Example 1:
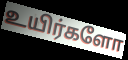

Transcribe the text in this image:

உயிர்களோ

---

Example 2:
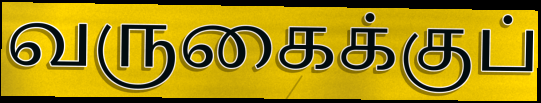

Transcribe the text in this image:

வருகைக்குப்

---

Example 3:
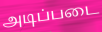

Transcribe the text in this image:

அடிப்படை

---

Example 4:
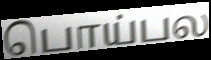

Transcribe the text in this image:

பொய்பல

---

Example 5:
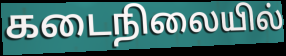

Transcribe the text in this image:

கடைநிலையில்